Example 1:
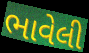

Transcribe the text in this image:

ભાવેલી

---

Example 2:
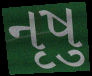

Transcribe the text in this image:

નૃષુ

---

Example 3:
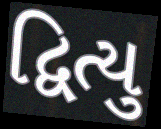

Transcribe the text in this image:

દ્વિત્યુ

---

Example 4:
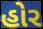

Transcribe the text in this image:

હોર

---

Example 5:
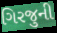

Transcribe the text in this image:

ગિરજુની